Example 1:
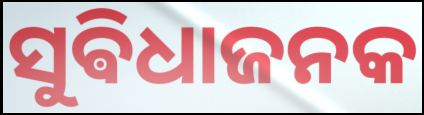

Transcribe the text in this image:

ସୁଵିଧାଜନକ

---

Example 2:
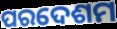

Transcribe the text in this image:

ପରଦେଶମ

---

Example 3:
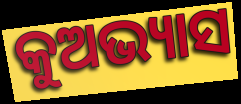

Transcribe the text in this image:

କୁଅଭ୍ୟାସ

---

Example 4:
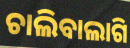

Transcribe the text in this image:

ଚାଲିବାଲାଗି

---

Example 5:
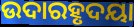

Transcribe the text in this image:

ଉଦାରହୃଦୟା